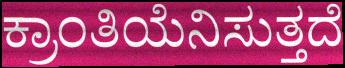
ಕ್ರಾಂತಿಯೆನಿಸುತ್ತದೆ